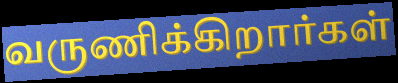
வருணிக்கிறார்கள்